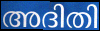
അദിതി